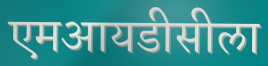
एमआयडीसीला